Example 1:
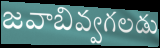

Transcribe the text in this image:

జవాబివ్వగలడు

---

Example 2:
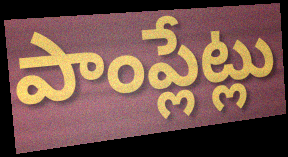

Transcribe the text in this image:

పాంప్లేట్లు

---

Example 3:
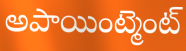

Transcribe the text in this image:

అపాయింట్మెంట్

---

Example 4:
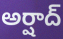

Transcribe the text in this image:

అర్షాద్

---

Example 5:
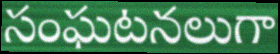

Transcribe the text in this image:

సంఘటనలుగా